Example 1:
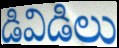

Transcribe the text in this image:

డివిడిలు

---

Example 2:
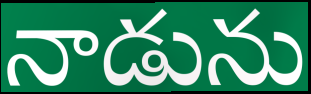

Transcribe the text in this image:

నాడును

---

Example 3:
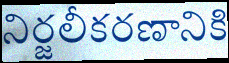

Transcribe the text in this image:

నిర్జలీకరణానికి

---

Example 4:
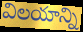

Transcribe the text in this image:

విలయాన్ని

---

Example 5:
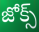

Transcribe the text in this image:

జోక్స్